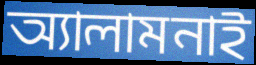
অ্যালামনাই